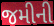
જમીની